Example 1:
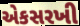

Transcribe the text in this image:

એકસરખી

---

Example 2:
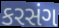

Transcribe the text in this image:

કરસંગ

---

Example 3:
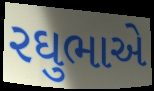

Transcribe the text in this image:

રઘુભાએ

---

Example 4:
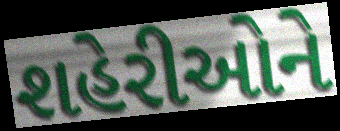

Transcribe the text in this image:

શહેરીઓને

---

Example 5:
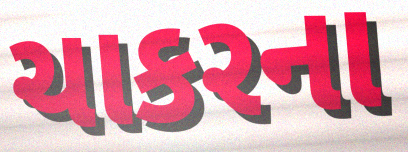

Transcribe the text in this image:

ચાકરના